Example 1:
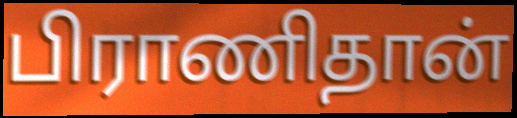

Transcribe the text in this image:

பிராணிதான்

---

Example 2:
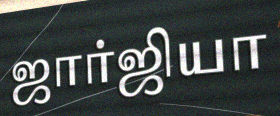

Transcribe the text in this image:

ஜார்ஜியா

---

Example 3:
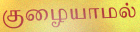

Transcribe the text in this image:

குழையாமல்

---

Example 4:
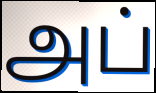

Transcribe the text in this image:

அப்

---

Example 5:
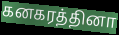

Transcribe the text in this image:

கனகரத்தினா